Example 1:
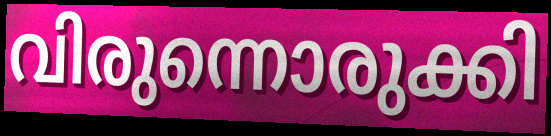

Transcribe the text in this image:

വിരുന്നൊരുക്കി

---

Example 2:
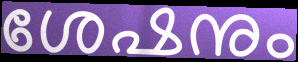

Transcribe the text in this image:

ശേഷനും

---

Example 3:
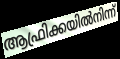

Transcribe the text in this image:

ആഫ്രിക്കയിൽനിന്ന്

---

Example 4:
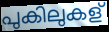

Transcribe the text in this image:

പുകിലുകള്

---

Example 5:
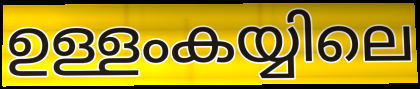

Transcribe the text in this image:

ഉള്ളംകയ്യിലെ